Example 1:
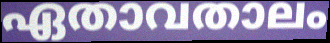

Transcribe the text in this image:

ഏതാവതാലം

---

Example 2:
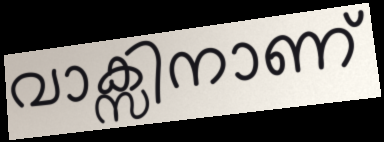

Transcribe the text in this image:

വാക്സിനാണ്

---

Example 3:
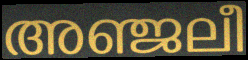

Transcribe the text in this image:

അഞ്ജലീ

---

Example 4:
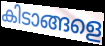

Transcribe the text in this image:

കിടാങ്ങളെ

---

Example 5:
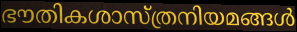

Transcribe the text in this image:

ഭൗതികശാസ്ത്രനിയമങ്ങൾ